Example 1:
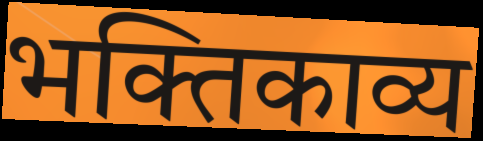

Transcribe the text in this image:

भक्तिकाव्य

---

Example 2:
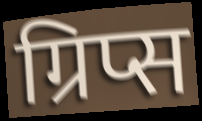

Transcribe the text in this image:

ग्रिप्स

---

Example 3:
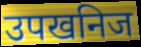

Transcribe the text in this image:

उपखनिज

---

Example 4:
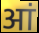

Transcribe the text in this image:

आं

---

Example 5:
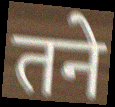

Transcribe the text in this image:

तने